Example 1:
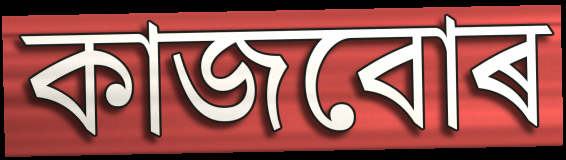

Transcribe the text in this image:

কাজবোৰ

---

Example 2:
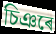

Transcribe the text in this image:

চিঞৰে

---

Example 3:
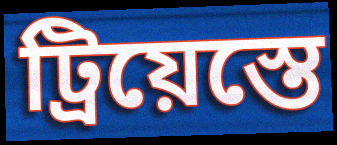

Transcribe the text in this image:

ট্ৰিয়েস্তে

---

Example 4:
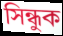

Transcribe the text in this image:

সিন্ধুক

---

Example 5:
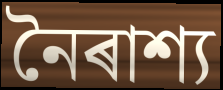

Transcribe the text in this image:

নৈৰাশ্য